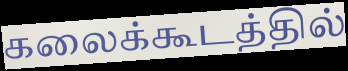
கலைக்கூடத்தில்